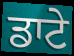
ਡਾਟੇ